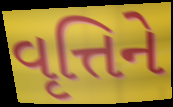
વૃત્તિને